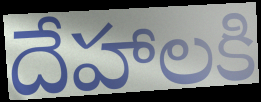
దేహాలకి